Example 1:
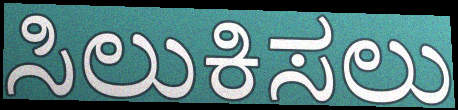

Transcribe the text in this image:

ಸಿಲುಕಿಸಲು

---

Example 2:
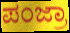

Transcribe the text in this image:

ಪಂಜ್ರಾ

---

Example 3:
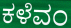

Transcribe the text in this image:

ಕಳೆವಂ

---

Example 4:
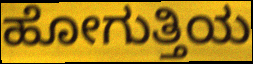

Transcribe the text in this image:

ಹೋಗುತ್ತಿಯ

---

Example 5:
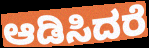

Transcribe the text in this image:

ಆಡಿಸಿದರೆ